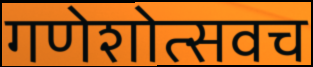
गणेशोत्सवच